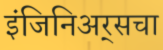
इंजिनिअर्सचा